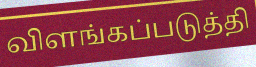
விளங்கப்படுத்தி